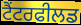
ਟੈਂਟਰਫੀਲਡ